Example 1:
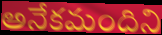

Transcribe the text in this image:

అనేకమందిని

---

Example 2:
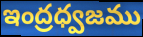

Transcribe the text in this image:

ఇంద్రధ్వజము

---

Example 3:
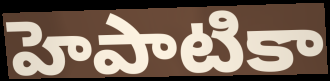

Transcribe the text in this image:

హెపాటికా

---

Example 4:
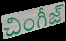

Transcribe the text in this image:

చింగీజ్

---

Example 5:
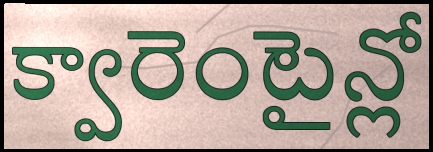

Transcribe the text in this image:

క్వారెంటైన్లో